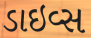
ડાઇવ્સ